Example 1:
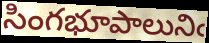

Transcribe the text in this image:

సింగభూపాలునిఁ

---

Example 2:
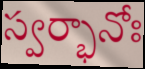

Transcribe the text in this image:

స్వర్భానోః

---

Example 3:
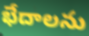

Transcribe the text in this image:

భేదాలను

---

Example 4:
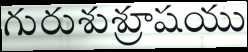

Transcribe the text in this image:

గురుశుశ్రూషయు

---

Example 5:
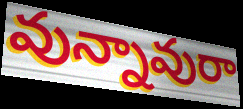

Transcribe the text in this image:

వున్నావురా